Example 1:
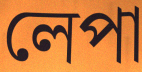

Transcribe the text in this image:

লেপা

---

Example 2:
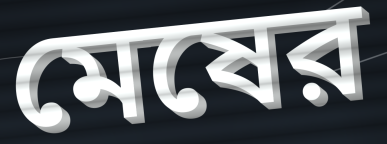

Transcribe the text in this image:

মেষের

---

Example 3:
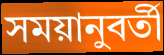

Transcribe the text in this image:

সময়ানুবর্তী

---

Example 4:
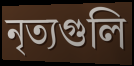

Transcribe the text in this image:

নৃত্যগুলি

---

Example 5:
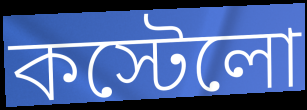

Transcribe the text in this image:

কস্টেলো